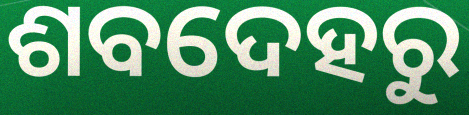
ଶବଦେହରୁ